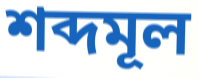
শব্দমূল